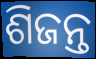
ଶିଜନ୍ତ